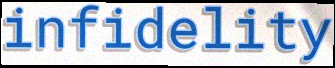
infidelity